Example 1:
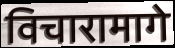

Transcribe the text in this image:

विचारामागे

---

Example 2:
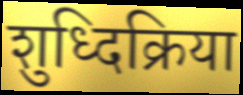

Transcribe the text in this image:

शुध्दिक्रिया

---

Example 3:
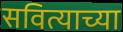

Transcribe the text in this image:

सवित्याच्या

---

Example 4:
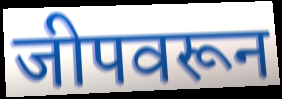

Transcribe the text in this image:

जीपवरून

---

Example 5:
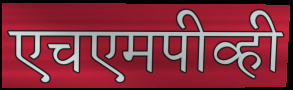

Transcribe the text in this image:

एचएमपीव्ही